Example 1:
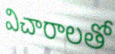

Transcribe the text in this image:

విచారాలతో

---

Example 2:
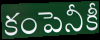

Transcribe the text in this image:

కంపెనీకీ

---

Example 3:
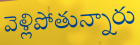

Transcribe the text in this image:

వెళ్లిపోతున్నారు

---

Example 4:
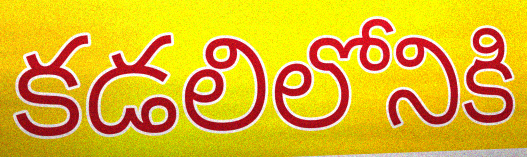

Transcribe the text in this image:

కడలిలోనికి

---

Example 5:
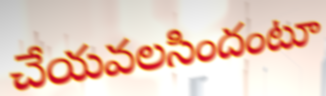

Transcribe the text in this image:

చేయవలసిందంటూ